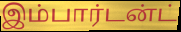
இம்பார்டன்ட்